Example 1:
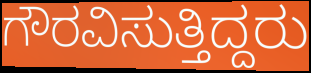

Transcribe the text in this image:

ಗೌರವಿಸುತ್ತಿದ್ದರು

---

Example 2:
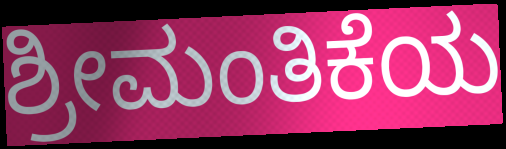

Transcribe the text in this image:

ಶ್ರೀಮಂತಿಕೆಯ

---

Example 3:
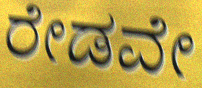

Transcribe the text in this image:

ರೇಡವೇ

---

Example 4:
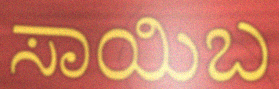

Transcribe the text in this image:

ಸಾಯಿಬ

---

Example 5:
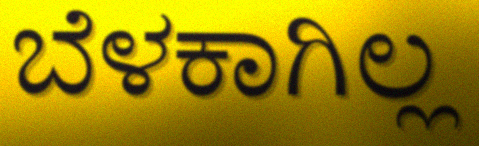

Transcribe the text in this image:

ಬೆಳಕಾಗಿಲ್ಲ